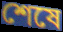
শেষে